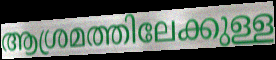
ആശ്രമത്തിലേക്കുള്ള